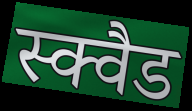
स्क्वैड